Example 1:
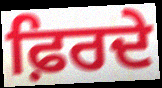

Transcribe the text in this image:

ਫ਼ਿਰਦੇ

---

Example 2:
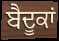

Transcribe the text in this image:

ਬੈਦੂਕਾਂ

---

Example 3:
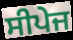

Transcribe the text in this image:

ਸੀਪੇਜ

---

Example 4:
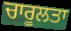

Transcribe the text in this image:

ਚਾਰੂਲਤਾ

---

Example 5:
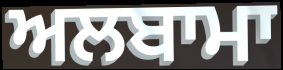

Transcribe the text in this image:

ਅਲਬਾਮਾ